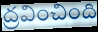
ద్రవించింది